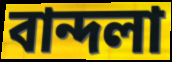
বান্দলা